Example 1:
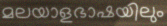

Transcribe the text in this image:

മലയാളഭാഷയിലും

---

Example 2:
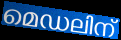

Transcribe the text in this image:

മെഡലിന്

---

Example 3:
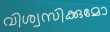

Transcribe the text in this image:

വിശ്വസിക്കുമോ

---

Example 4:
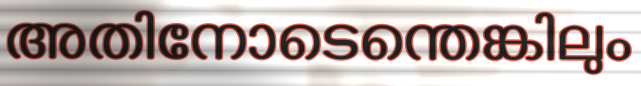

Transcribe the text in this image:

അതിനോടെന്തെങ്കിലും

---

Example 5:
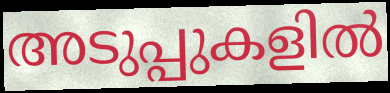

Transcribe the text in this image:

അടുപ്പുകളിൽ